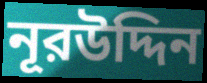
নূরউদ্দিন